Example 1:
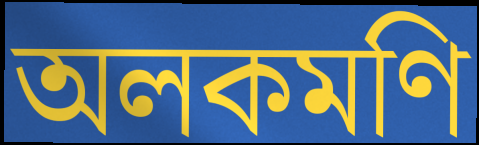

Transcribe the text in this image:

অলকমণি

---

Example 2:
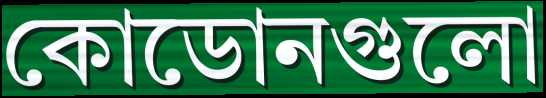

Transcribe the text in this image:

কোডোনগুলো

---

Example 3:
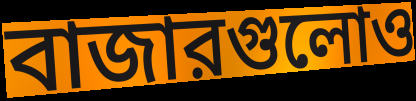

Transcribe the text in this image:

বাজারগুলোও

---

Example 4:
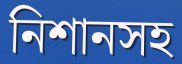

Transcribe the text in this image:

নিশানসহ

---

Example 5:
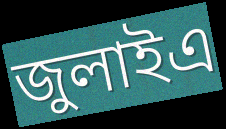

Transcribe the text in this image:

জুলাইএ